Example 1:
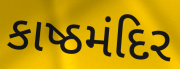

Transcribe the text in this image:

કાષ્ઠમંદિર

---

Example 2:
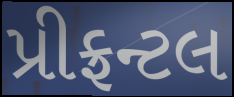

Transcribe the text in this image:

પ્રીફ્રન્ટલ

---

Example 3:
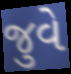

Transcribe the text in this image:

જુવે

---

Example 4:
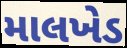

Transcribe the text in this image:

માલખેડ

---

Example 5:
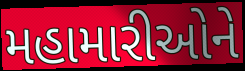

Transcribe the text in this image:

મહામારીઓને